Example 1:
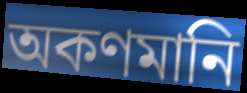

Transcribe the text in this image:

অকণমানি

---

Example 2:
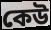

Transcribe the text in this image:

কেউ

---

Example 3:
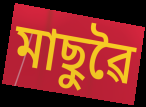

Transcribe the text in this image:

মাছুৱৈ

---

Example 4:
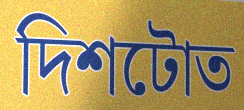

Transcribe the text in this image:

দিশটোত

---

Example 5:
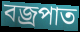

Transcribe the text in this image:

বজ্ৰপাত